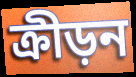
ক্রীড়ন